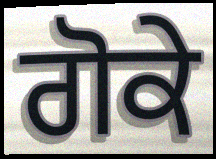
ਗੋਕੇ